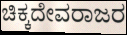
ಚಿಕ್ಕದೇವರಾಜರ